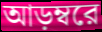
আড়ম্বরে